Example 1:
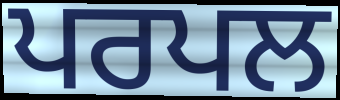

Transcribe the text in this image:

ਪਰਪਲ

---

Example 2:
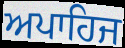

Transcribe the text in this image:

ਅਪਾਹਿਜ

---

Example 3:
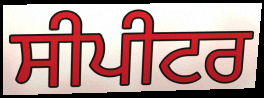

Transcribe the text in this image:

ਸੀਪੀਟਰ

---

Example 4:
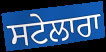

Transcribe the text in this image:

ਸਟੇਲਾਰਾ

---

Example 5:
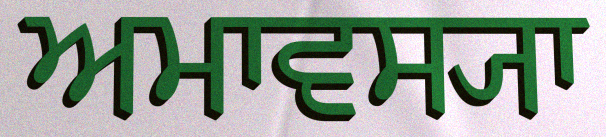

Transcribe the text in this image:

ਅਮਾਵਸ੍ਯਾ